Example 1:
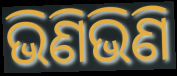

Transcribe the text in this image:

ଭିଣିଭିଣି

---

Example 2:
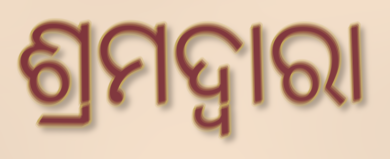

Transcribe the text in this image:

ଶ୍ରମଦ୍ୱାରା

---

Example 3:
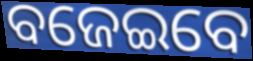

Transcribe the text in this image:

ବଜେଇବେ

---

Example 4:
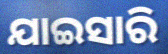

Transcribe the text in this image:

ଯାଇସାରି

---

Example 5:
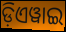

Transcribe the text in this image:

ଡ଼ିଏୱାଇ